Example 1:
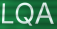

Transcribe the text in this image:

LQA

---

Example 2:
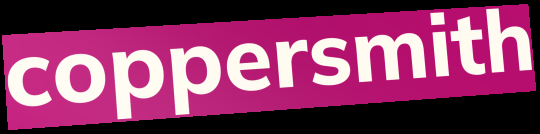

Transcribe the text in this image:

coppersmith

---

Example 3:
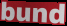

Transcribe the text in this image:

bund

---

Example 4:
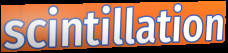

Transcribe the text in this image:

scintillation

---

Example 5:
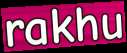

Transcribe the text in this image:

rakhu